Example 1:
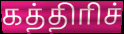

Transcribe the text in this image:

கத்திரிச்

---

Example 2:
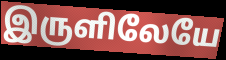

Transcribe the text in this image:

இருளிலேயே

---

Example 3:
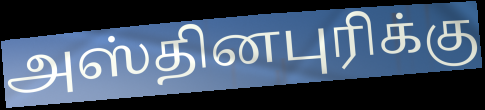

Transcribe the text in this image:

அஸ்தினபுரிக்கு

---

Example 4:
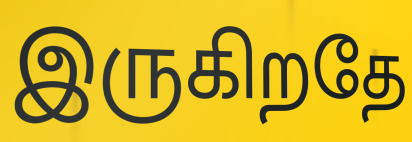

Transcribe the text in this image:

இருகிறதே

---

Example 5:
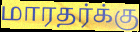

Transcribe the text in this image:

மாரதர்க்கு